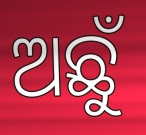
ଅଛୁଁ